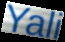
Yali